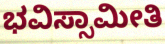
ಭವಿಸ್ಸಾಮೀತಿ